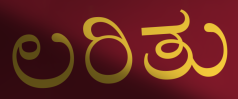
ಲರಿತು